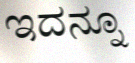
ಇದನ್ನೂ